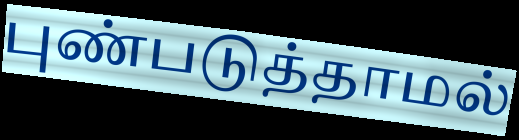
புண்படுத்தாமல்